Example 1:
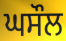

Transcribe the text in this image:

ਘਸੌਲ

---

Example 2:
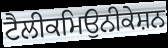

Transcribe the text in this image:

ਟੈਲੀਕਮਿਉਨੀਕੇਸ਼ਨ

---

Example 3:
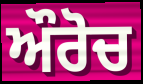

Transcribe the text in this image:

ਔਰੋਚ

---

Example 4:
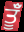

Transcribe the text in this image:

ਤੂੰਁ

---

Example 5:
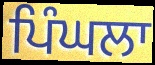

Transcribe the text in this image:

ਪਿੰਘਲਾ